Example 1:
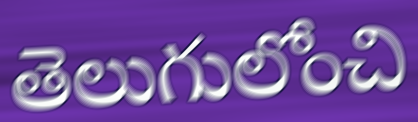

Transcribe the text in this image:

తెలుగులోంచి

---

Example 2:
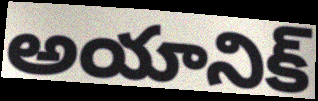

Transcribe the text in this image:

అయానిక్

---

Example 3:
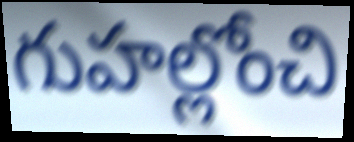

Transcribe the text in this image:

గుహల్లోంచి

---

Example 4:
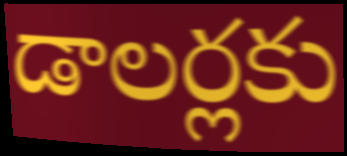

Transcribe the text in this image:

డాలర్లకు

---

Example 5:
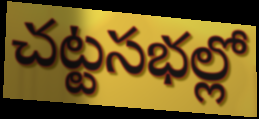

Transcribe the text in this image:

చట్టసభల్లో